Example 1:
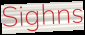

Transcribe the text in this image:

Sighns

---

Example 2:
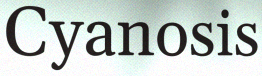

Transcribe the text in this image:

Cyanosis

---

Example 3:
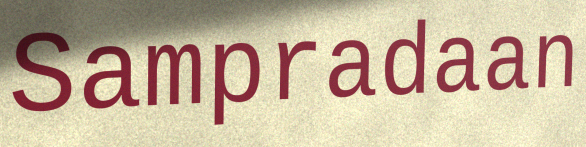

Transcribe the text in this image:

Sampradaan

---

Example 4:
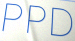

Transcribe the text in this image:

PPD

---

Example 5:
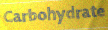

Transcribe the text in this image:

Carbohydrate